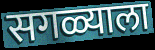
सगळ्याला